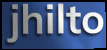
jhilto